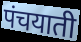
पंचयाती